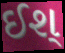
ઈશ્